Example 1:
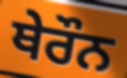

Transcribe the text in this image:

ਥੇਰੌਨ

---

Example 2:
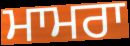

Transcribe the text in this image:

ਮਾਮਰਾ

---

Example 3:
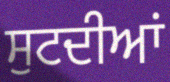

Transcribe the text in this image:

ਸੁਟਦੀਆਂ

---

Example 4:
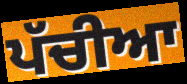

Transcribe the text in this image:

ਪੱਚੀਆ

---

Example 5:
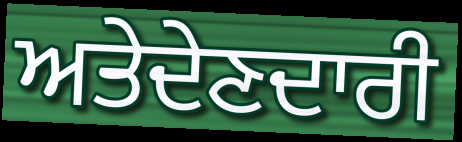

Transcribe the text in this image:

ਅਤੇਦੇਣਦਾਰੀ